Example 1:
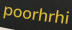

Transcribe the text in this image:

poorhrhi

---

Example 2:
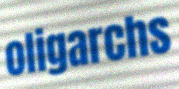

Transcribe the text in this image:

oligarchs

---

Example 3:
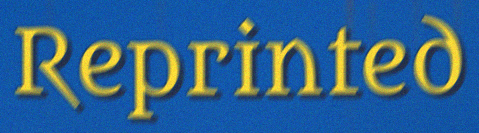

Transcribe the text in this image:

Reprinted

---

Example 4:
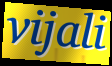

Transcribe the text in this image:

vijali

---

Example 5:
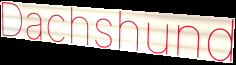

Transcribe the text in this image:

Dachshund